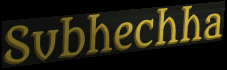
Subhechha